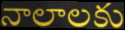
నాలాలకు